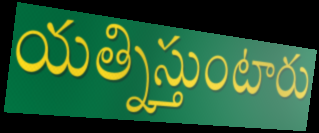
యత్నిస్తుంటారు